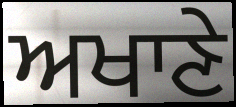
ਅਖਾਣੇ